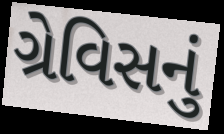
ગ્રેવિસનું